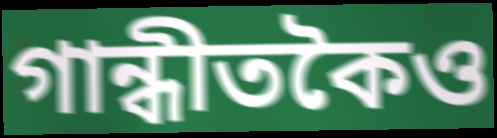
গান্ধীতকৈও